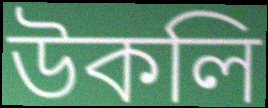
উকলি